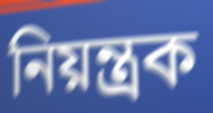
নিয়ন্ত্ৰক